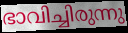
ഭാവിച്ചിരുന്നു